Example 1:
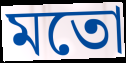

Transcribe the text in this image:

মতো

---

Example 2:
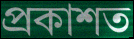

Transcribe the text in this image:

প্ৰকাশত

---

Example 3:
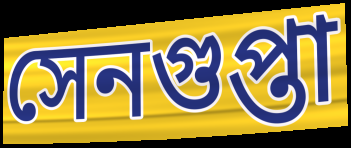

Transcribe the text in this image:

সেনগুপ্তা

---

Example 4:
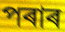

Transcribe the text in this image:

পৰাৰ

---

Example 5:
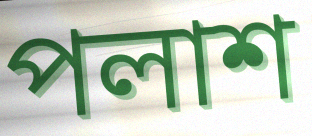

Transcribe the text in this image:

পলাশ